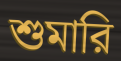
শুমারি